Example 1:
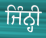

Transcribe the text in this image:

ਜਿੰਨ੍ਹੀ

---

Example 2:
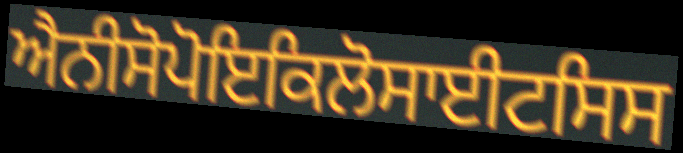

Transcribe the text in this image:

ਐਨੀਸੋਪੋਇਕਿਲੋਸਾਈਟਸਿਸ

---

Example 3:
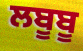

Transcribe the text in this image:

ਲਬੂਬੂ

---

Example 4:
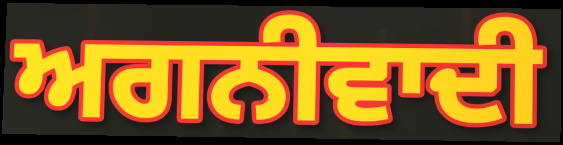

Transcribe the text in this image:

ਅਗਨੀਵਾਦੀ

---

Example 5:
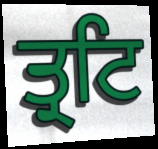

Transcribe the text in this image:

ਤ੍ਰਟਿ